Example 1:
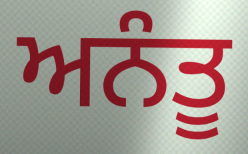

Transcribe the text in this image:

ਅਨੰਤੂ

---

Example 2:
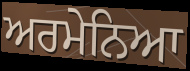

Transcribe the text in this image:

ਅਰਮੇਨਿਆ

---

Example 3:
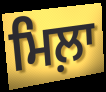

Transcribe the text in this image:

ਮਿਲ਼ਾ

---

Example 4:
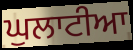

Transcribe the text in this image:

ਘੁਲਾਟੀਆ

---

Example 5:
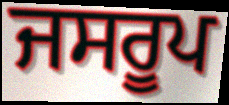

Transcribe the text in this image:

ਜਸਰੂਪ